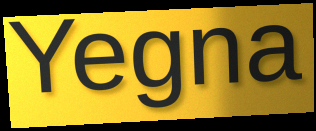
Yegna